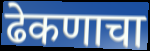
ढेकणाचा